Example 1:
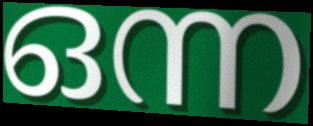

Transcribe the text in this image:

ഒന്ന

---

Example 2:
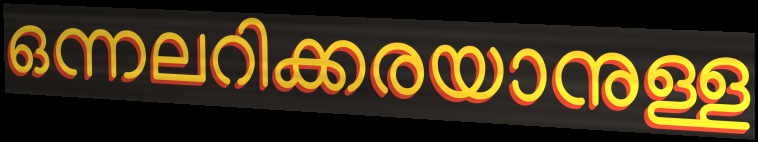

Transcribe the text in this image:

ഒന്നലറിക്കരയാനുള്ള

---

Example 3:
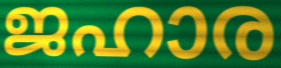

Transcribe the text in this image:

ജഹാര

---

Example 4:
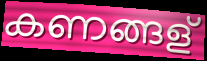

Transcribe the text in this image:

കണങ്ങള്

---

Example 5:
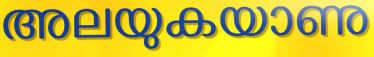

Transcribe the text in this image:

അലയുകയാണു